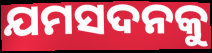
ଯମସଦନକୁ